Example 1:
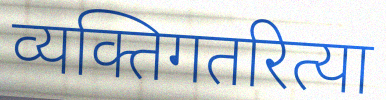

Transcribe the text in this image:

व्यक्तिगतरित्या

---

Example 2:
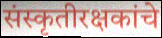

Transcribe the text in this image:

संस्कृतीरक्षकांचे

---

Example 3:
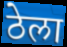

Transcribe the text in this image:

ठेला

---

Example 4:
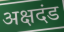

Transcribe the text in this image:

अक्षदंड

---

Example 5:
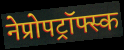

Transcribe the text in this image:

नेप्रोपट्रॉफ्स्क